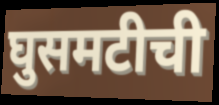
घुसमटीची